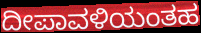
ದೀಪಾವಳಿಯಂತಹ